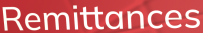
Remittances